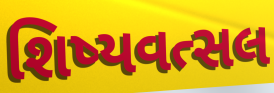
શિષ્યવત્સલ